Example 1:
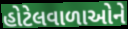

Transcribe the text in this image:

હોટેલવાળાઓને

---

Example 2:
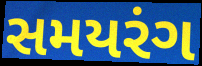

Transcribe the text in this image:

સમયરંગ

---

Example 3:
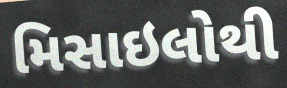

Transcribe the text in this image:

મિસાઇલોથી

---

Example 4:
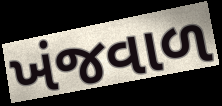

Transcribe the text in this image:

ખંજવાળ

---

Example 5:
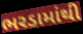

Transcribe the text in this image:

ભરડામાંથી